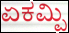
ಏಕಮ್ಪಿ